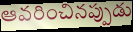
ఆవరించినప్పుడు